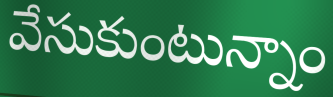
వేసుకుంటున్నాం